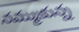
నమ్ముకున్న